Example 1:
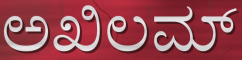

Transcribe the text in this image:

ಅಖಿಲಮ್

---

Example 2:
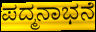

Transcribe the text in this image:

ಪದ್ಮನಾಭನೆ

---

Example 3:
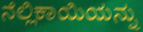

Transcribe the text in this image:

ನೆಲ್ಲಿಕಾಯಿಯನ್ನು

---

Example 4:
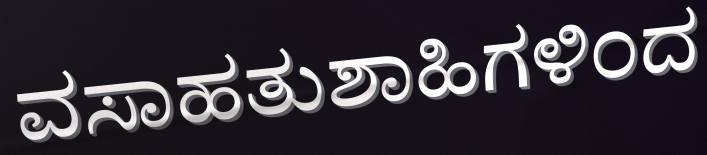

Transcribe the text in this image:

ವಸಾಹತುಶಾಹಿಗಳಿಂದ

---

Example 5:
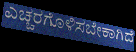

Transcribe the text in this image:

ಎಚ್ಚರಗೊಳಿಸಬೇಕಾಗಿದೆ